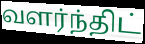
வளர்ந்திட்